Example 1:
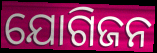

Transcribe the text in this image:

ଯୋଗିଜନ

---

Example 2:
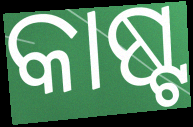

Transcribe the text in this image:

କାଷ୍ଟ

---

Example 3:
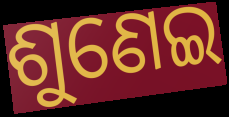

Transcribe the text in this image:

ଶୁଣେଇ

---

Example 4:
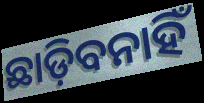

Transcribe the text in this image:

ଛାଡ଼ିବନାହିଁ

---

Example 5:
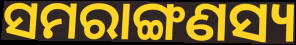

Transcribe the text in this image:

ସମରାଙ୍ଗଣସ୍ୟ